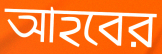
আহবের